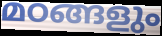
മഠങ്ങളും